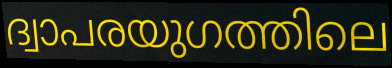
ദ്വാപരയുഗത്തിലെ